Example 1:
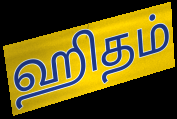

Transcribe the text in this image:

ஹிதம்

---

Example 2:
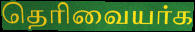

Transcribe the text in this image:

தெரிவையர்க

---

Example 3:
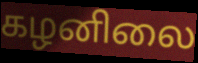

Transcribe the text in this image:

கழனிலை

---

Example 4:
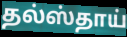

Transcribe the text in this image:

தல்ஸ்தாய்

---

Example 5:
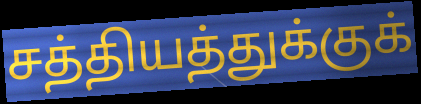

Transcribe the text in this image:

சத்தியத்துக்குக்